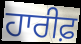
ਹਾਰੀਫ਼